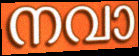
നവാ